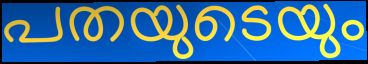
പതയുടെയും